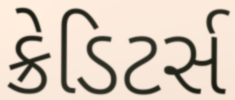
ક્રેડિટર્સ